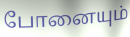
போனையும்